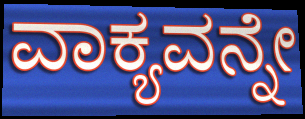
ವಾಕ್ಯವನ್ನೇ